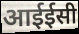
आईईसी